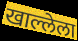
खाल्लेला